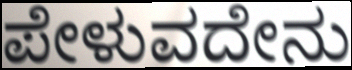
ಪೇಳುವದೇನು